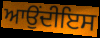
ਆਉਂਦੀਇਸ